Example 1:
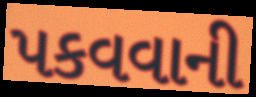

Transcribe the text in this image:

પકવવાની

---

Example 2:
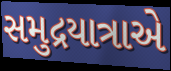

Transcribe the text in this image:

સમુદ્રયાત્રાએ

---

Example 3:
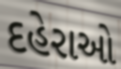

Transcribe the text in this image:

દહેરાઓ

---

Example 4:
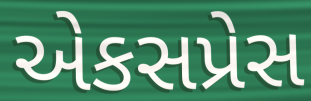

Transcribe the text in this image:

એકસપ્રેસ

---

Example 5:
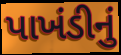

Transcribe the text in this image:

પાખંડીનું